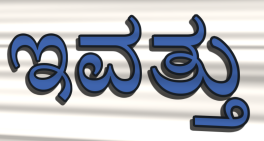
ಇವತ್ತು